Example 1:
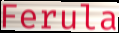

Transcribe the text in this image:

Ferula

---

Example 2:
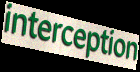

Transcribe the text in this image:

interception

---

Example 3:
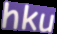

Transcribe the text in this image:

hku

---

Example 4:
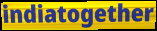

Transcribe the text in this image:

indiatogether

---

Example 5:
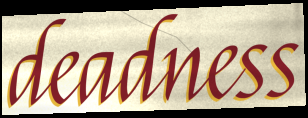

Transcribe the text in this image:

deadness